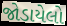
જોડાયેલો